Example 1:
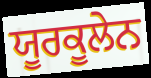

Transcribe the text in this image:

ਯੂਰਕੂਲੇਨ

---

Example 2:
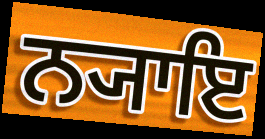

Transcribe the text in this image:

ਨ੍ਯਾਇ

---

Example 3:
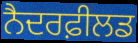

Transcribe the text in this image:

ਨੈਦਰਫ਼ੀਲਡ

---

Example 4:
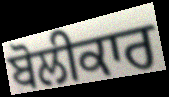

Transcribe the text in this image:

ਬੋਲੀਕਾਰ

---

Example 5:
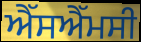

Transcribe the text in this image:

ਐੱਸਐੱਮਸੀ